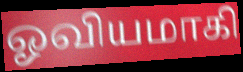
ஓவியமாகி